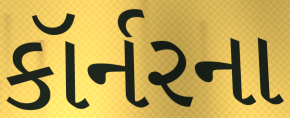
કૉર્નરના